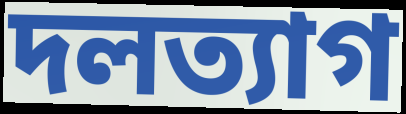
দলত্যাগ